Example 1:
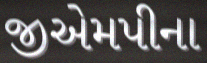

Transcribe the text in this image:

જીએમપીના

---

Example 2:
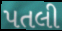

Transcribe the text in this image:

પતલી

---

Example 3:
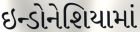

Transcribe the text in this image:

ઇન્ડોનેશિયામાં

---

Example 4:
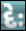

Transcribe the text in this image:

દેઃ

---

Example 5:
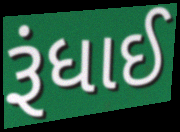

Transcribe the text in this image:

રૂંધાઈ